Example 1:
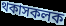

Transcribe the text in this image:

থকাসকলক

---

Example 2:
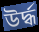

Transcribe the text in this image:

উৰ্দ্ধ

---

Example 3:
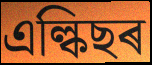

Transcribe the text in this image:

এল্কিছৰ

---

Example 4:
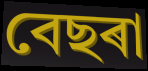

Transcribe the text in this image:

বেছৰা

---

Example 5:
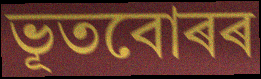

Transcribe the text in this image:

ভূতবোৰৰ